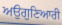
ਅਉਗੁਣਿਆਰੀ